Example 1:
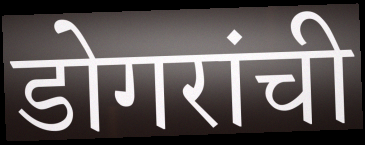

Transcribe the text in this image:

डोगरांची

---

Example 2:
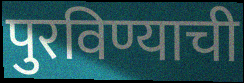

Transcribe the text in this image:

पुरविण्याची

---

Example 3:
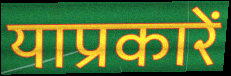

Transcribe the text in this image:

याप्रकारें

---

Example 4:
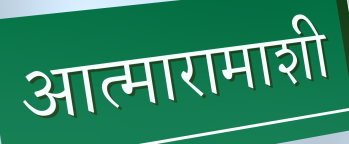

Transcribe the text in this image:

आत्मारामाशी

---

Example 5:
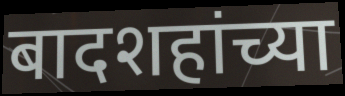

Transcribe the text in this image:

बादशहांच्या